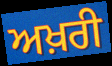
ਅਖ਼ਰੀ